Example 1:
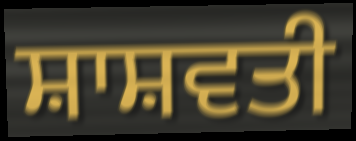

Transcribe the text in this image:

ਸ਼ਾਸ਼ਵਤੀ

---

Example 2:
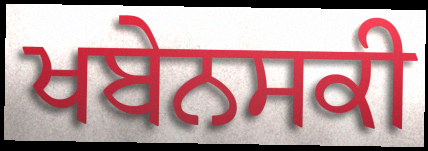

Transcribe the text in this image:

ਖਬੇਨਸਕੀ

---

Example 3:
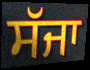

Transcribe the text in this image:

ਸੱਜਾ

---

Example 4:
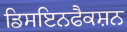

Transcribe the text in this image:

ਡਿਸਇਨਫੈਕਸ਼ਨ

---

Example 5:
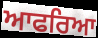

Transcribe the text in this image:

ਆਫਰਿਆ